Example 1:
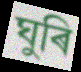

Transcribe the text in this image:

ঘুৰি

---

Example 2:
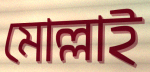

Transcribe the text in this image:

মোল্লাই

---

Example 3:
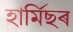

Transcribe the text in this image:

হাৰ্মিছৰ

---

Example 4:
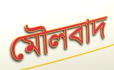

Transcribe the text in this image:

মৌলবাদ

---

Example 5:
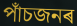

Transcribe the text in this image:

পাঁচজনৰ